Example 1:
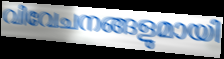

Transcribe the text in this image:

വിവേചനങ്ങളുമായി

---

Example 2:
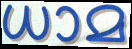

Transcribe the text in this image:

ധാമ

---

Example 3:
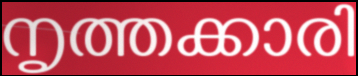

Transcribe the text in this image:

നൃത്തക്കാരി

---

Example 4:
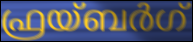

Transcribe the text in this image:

ഫ്രയ്ബർഗ്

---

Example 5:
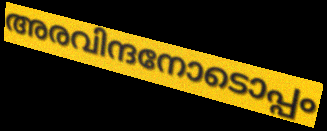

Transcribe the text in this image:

അരവിന്ദനോടൊപ്പം